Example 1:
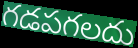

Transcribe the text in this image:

గడపగలదు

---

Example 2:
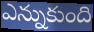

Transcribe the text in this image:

ఎన్నుకుంది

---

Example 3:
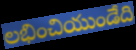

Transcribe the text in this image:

లభించియుండేది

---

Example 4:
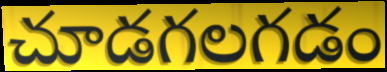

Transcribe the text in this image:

చూడగలగడం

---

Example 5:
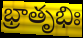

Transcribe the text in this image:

భ్రాతృభిః